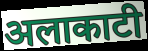
अलाकाटी